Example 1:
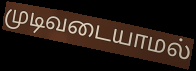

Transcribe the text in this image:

முடிவடையாமல்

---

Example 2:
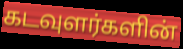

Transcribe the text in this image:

கடவுளர்களின்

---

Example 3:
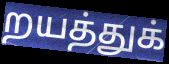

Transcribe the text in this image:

றயத்துக்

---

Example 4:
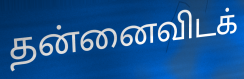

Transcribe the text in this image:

தன்னைவிடக்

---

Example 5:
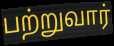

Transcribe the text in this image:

பற்றுவார்